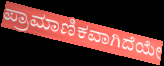
ಪ್ರಾಮಾಣಿಕವಾಗಿದೆಯೇ